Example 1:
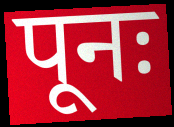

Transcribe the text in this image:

पूनः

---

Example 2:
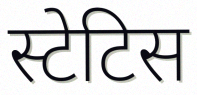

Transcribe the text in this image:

स्टेटिस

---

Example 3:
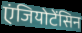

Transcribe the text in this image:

एंजियोटेंसिन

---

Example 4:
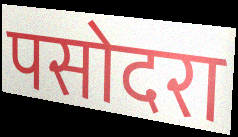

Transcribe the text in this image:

पसोदरा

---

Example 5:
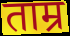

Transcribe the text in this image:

ताम्र